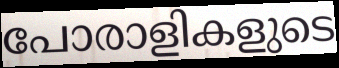
പോരാളികളുടെ